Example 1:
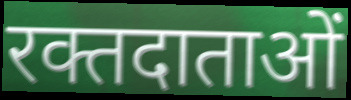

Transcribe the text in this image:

रक्तदाताओं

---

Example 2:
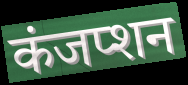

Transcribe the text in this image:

कंजप्शन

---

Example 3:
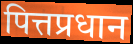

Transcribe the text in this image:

पित्तप्रधान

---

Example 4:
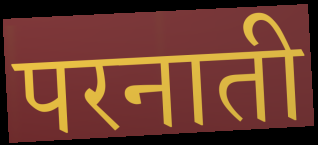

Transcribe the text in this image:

परनाती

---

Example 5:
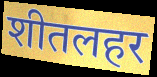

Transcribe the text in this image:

शीतलहर